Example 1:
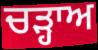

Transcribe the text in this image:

ਚੜ੍ਹਾਅ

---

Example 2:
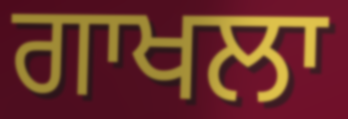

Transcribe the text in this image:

ਗਾਖਲਾ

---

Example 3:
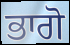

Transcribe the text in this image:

ਭਾਗੋ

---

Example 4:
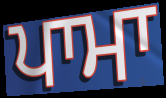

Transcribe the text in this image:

ਪਾਮਾ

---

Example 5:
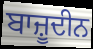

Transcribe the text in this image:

ਬਾਜ਼ੂਦੀਨ